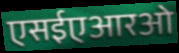
एसईएआरओ